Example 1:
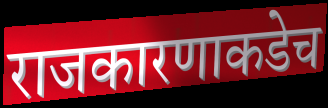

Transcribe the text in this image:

राजकारणाकडेच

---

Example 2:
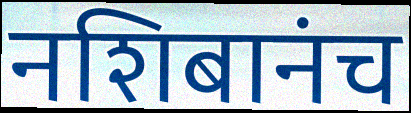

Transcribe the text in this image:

नशिबानंच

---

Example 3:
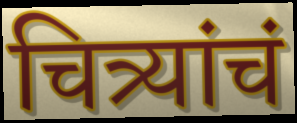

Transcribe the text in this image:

चित्र्यांचं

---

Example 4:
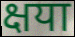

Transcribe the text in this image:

क्षया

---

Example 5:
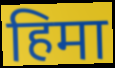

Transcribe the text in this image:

हिमा